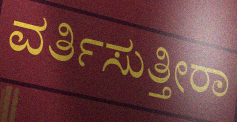
ವರ್ತಿಸುತ್ತೀರಾ